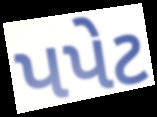
પપેટ